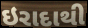
ઇરાદાથી